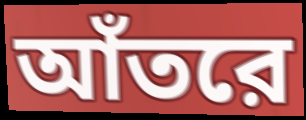
আঁতরে